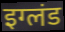
इग्लंड